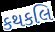
કથકલિ